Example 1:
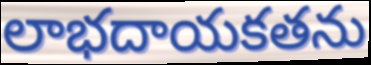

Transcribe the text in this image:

లాభదాయకతను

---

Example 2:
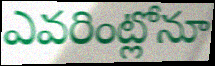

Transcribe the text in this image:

ఎవరింట్లోనూ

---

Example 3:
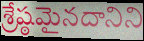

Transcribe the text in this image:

శ్రేష్ఠమైనదానిని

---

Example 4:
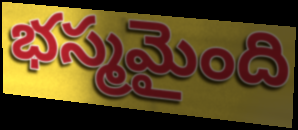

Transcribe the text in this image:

భస్మమైంది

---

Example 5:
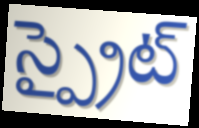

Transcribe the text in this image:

స్ప్రైట్